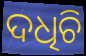
ଦଧିଚି